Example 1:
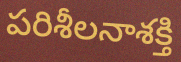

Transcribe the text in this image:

పరిశీలనాశక్తి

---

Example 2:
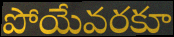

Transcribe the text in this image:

పోయేవరకూ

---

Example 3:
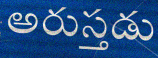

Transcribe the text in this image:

అరుస్తడు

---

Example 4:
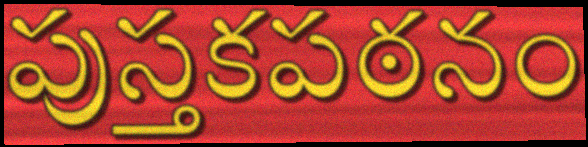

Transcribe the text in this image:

పుస్తకపఠనం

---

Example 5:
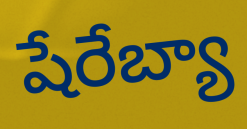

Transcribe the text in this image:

షేరేబ్యా